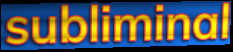
subliminal